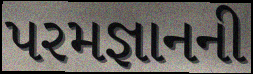
પરમજ્ઞાનની